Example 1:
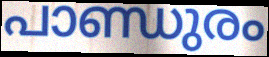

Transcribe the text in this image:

പാണ്ഡുരം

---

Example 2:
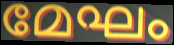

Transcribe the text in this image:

മേഘം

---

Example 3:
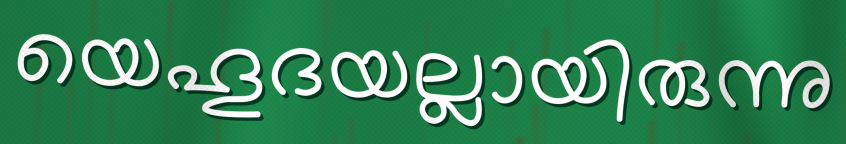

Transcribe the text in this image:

യെഹൂദയല്ലായിരുന്നു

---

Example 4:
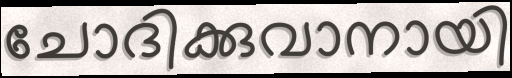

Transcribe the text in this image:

ചോദിക്കുവാനായി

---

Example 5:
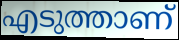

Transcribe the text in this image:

എടുത്താണ്